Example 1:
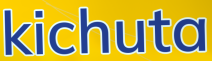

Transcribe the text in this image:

kichuta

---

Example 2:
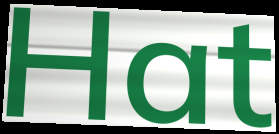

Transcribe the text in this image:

Hat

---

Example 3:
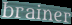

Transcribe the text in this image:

brainer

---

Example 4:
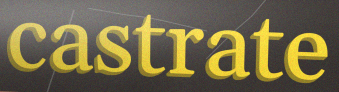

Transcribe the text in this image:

castrate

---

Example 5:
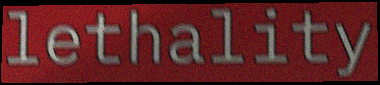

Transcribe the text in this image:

lethality